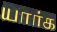
யார்க